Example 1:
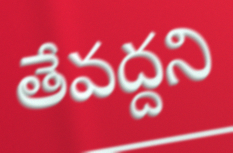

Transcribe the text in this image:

తేవద్దని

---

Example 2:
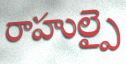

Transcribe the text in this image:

రాహుల్పై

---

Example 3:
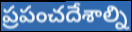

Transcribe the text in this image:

ప్రపంచదేశాల్ని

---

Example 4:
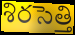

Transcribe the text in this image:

శిరసెత్తి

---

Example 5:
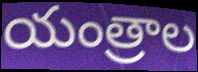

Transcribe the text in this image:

యంత్రాల